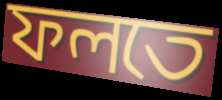
ফলতে